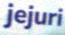
jejuri